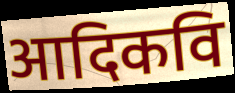
आदिकवि